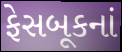
ફેસબૂકનાં